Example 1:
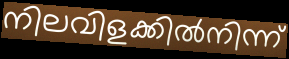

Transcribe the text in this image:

നിലവിളക്കിൽനിന്ന്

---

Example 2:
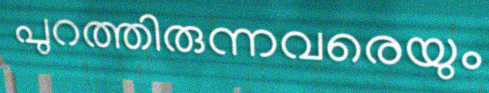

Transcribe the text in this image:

പുറത്തിരുന്നവരെയും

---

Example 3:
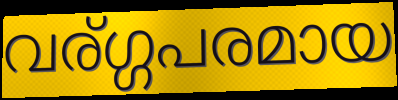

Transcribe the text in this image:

വര്ഗ്ഗപരമായ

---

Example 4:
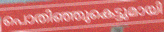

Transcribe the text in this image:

പൊതിഞ്ഞുകെട്ടുമായി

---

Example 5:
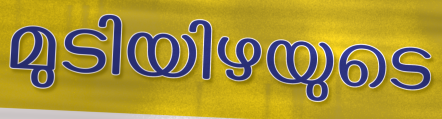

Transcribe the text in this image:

മുടിയിഴയുടെ